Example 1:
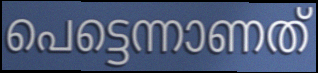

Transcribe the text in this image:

പെട്ടെന്നാണത്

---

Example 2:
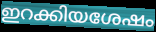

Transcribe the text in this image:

ഇറക്കിയശേഷം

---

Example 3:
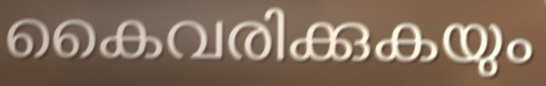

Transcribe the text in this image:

കൈവരിക്കുകയും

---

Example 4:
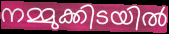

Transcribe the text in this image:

നമ്മുക്കിടയിൽ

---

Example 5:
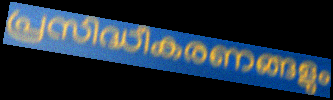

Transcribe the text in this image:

പ്രസിദ്ധീകരണങ്ങളും